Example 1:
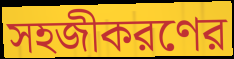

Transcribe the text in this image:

সহজীকরণের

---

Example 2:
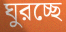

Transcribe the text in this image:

ঘুরচ্ছে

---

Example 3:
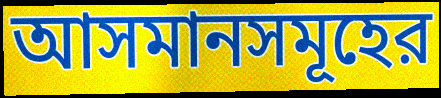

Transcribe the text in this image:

আসমানসমূহের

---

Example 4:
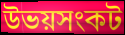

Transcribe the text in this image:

উভয়সংকট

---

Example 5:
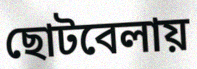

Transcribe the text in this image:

ছোটবেলায়